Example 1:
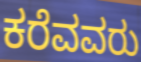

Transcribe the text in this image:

ಕರೆವವರು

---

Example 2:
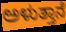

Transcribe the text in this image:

ಅಳುತ್ತಾನೆ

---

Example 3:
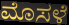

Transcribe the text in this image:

ಮೊಸಳೆ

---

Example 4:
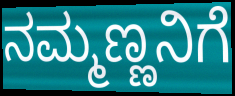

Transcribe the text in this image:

ನಮ್ಮಣ್ಣನಿಗೆ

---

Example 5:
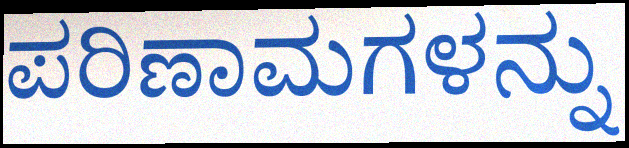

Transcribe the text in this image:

ಪರಿಣಾಮಗಳನ್ನು